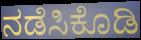
ನಡೆಸಿಕೊಡಿ